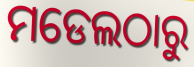
ମଡେଲଠାରୁ